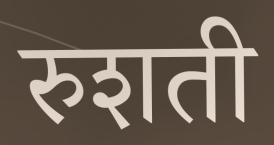
रुशती